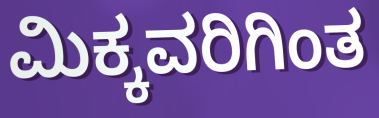
ಮಿಕ್ಕವರಿಗಿಂತ